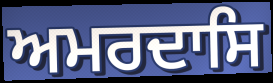
ਅਮਰਦਾਸਿ